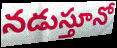
నడుస్తూనో